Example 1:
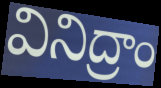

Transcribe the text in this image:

వినిద్రాం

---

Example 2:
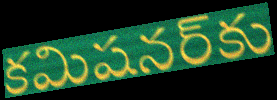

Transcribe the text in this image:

కమిషనర్‌కు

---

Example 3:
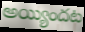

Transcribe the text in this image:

అయ్యిందట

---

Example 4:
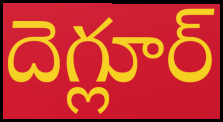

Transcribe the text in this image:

దెగ్లూర్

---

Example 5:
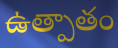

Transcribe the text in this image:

ఉత్పాతం